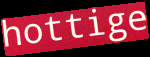
hottige